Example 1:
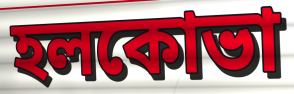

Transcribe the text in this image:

হলকোভা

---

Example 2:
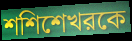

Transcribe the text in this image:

শশিশেখরকে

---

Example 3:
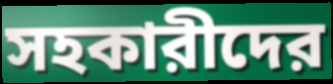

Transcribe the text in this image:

সহকারীদের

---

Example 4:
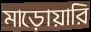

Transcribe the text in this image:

মাড়োয়ারি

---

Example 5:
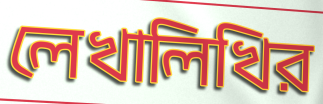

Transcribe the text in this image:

লেখালিখির